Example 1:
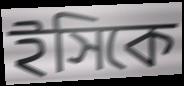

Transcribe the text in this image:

ইসিকে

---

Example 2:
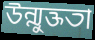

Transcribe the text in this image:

উন্মুক্ততা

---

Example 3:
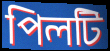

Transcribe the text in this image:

পিলটি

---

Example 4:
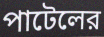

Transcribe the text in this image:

পাটেলের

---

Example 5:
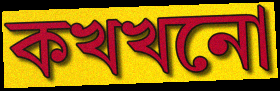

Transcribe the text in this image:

কখখনো